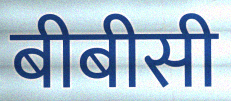
बीबीसी